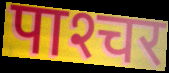
पाश्चर